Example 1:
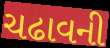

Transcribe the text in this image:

ચઢાવની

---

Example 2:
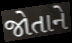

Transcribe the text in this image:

જોતાને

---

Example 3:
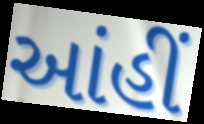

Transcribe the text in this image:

આંહીં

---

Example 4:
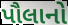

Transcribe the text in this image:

પૌલાનો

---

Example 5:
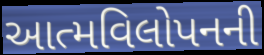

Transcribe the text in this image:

આત્મવિલોપનની